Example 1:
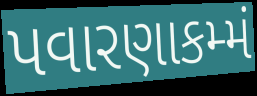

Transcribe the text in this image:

પવારણાકમ્મં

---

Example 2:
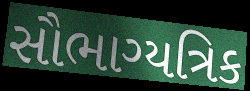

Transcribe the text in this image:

સૌભાગ્યત્રિક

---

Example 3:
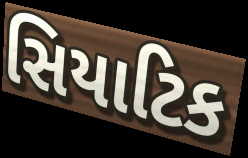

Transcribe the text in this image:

સિયાટિક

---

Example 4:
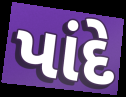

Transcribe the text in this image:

પાંદે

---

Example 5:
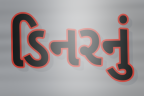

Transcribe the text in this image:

ડિનરનું